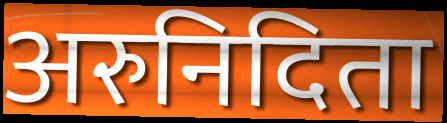
अरुनिदिता